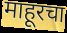
माहूरचा